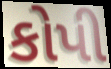
કોપી